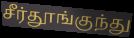
சீர்தூங்குந்து